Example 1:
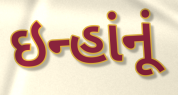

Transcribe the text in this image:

ઇન્હાંનૂં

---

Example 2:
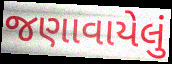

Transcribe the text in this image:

જણાવાયેલું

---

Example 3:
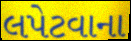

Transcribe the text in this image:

લપેટવાના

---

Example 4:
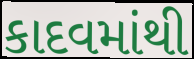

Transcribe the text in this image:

કાદવમાંથી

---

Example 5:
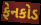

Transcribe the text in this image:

ફેનકોડ